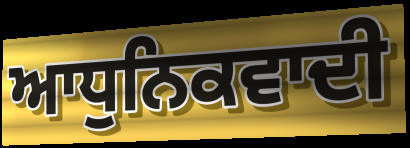
ਆਧੁਨਿਕਵਾਦੀ